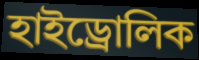
হাইড্রোলিক